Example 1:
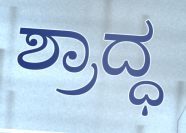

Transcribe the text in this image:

ಶ್ರಾದ್ಧ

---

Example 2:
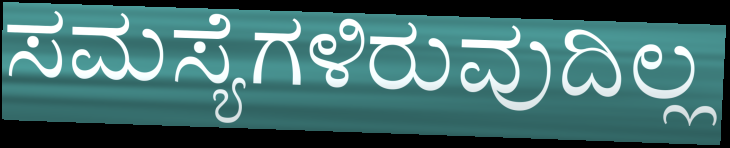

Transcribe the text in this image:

ಸಮಸ್ಯೆಗಳಿರುವುದಿಲ್ಲ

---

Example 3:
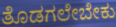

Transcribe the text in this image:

ತೊಡಗಲೇಬೇಕು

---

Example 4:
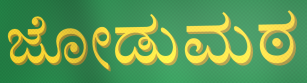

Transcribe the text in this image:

ಜೋಡುಮಠ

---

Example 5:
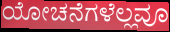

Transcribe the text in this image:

ಯೋಚನೆಗಳೆಲ್ಲವೂ